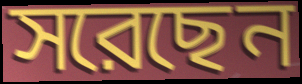
সরেছেন